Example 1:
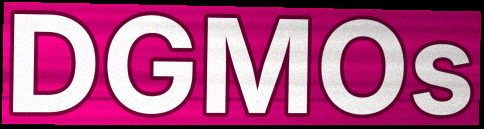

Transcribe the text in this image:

DGMOs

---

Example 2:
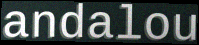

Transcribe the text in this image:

andalou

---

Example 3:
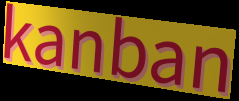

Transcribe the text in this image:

kanban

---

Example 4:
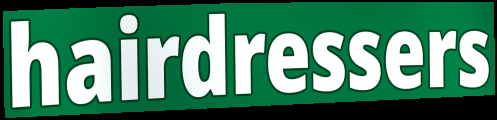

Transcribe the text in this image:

hairdressers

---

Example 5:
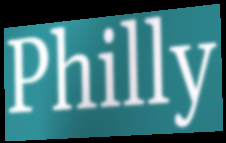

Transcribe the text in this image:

Philly